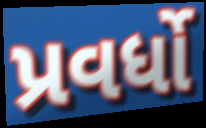
પ્રવર્ધો